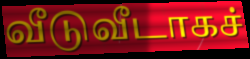
வீடுவீடாகச்